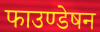
फाउण्डेषन